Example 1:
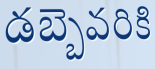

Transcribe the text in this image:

డబ్బెవరికి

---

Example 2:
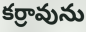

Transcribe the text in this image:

కర్రావును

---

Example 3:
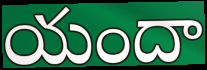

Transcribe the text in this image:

యందా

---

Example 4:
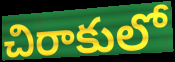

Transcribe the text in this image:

చిరాకులో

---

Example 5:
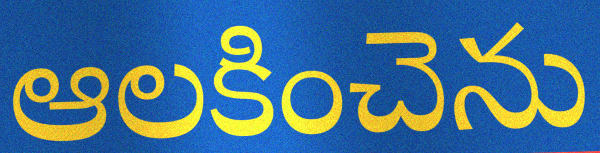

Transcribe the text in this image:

ఆలకించెను